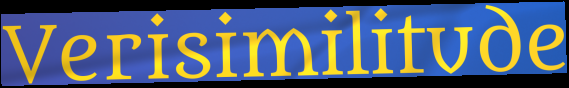
Verisimilitude